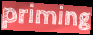
priming